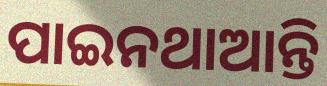
ପାଇନଥାଆନ୍ତି